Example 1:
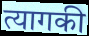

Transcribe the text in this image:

त्यागकी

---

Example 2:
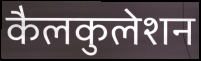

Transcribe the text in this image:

कैलकुलेशन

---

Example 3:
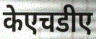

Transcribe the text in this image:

केएचडीए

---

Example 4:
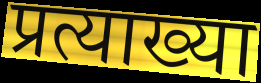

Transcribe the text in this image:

प्रत्याख्या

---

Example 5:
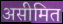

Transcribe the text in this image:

असीमित